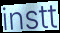
instt